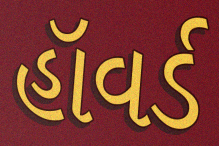
હૉવર્ડ